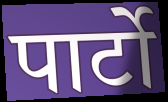
पार्टो